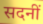
सदनीं